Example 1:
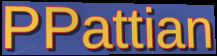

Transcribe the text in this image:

PPattian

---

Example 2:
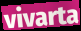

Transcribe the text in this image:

vivarta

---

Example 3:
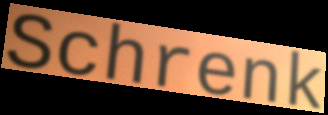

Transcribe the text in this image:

Schrenk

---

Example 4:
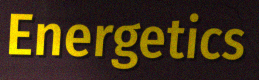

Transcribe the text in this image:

Energetics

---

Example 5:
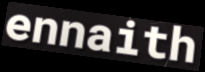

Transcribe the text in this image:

ennaith